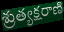
శ్రుత్యక్షరాణి